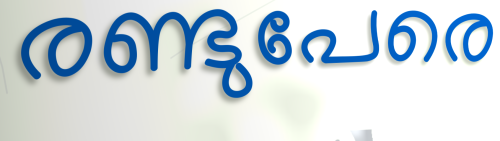
രണ്ടുപേരെ